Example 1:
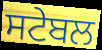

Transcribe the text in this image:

ਸਟੇਬਲ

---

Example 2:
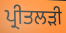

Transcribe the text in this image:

ਪ੍ਰੀਤਲੜੀ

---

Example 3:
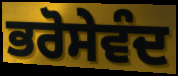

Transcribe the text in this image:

ਭਰੋਸੇਵੰਦ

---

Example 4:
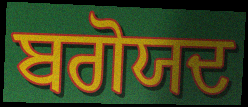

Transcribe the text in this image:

ਬਗੋਯਦ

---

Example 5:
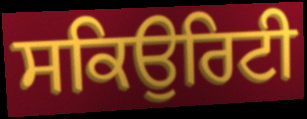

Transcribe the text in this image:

ਸਕਿਉਰਿਟੀ